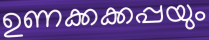
ഉണക്കക്കപ്പയും